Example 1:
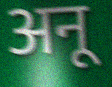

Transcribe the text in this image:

अनू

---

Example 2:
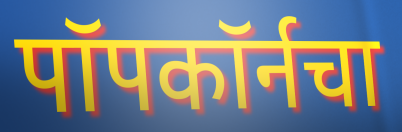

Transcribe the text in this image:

पॉपकॉर्नचा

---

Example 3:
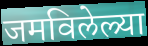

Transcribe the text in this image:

जमविलेल्या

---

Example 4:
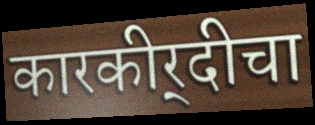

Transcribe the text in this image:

कारकीर्दीचा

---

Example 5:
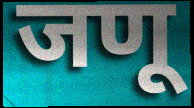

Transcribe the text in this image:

जणू